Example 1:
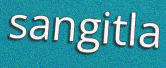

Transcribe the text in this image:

sangitla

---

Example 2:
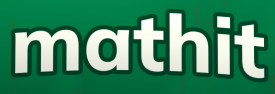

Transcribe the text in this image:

mathit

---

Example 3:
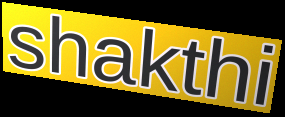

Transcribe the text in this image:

shakthi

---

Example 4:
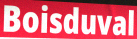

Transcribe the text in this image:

Boisduval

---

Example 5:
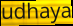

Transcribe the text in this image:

udhaya